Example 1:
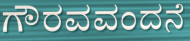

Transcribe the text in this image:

ಗೌರವವಂದನೆ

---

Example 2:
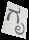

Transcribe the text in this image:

ಗೃ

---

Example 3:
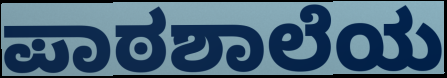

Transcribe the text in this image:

ಪಾಠಶಾಲೆಯ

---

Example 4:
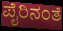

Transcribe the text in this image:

ಪೈರಿನಂತೆ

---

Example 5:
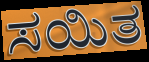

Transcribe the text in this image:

ಸಯಿತ